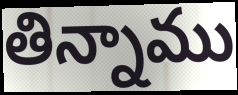
తిన్నాము